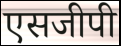
एसजीपी